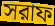
সরাফ